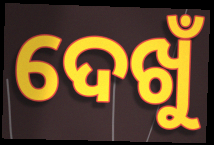
ଦେଖୁଁ